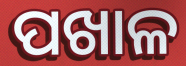
ପଖାଳ